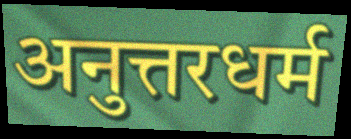
अनुत्तरधर्म